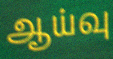
ஆய்வு